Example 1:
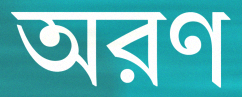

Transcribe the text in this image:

অরণ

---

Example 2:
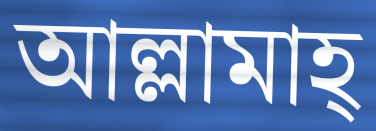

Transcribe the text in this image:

আল্লামাহ্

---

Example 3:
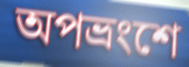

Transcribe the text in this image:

অপভ্রংশে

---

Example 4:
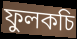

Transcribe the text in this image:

ফুলকচি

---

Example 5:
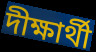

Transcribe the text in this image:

দীক্ষার্থী